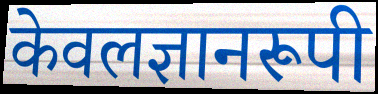
केवलज्ञानरूपी